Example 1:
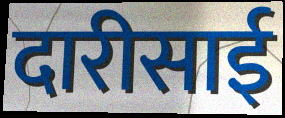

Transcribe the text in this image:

दारीसाई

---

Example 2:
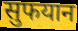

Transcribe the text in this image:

सुफयान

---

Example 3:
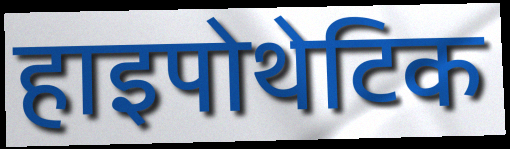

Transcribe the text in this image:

हाइपोथेटिक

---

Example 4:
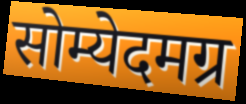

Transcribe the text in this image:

सोम्येदमग्र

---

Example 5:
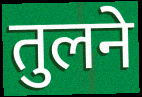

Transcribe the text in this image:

तुलने